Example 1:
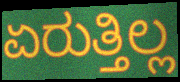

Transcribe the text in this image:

ಏರುತ್ತಿಲ್ಲ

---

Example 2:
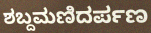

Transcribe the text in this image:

ಶಬ್ದಮಣಿದರ್ಪಣ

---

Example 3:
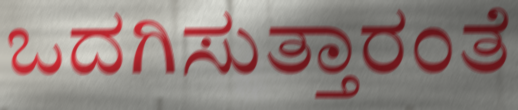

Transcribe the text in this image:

ಒದಗಿಸುತ್ತಾರಂತೆ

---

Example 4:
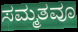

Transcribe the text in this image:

ಸಮ್ಮತವೂ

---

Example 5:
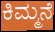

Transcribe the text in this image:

ಕಿಮ್ಮನೆ